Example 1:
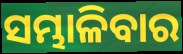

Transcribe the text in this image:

ସମ୍ଭାଳିବାର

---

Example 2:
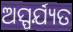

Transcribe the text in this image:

ଅସ୍ପର୍ଯ୍ୟତ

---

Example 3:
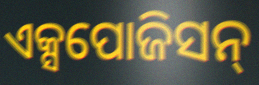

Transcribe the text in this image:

ଏକ୍ସପୋଜିସନ୍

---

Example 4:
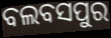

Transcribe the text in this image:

ବଲବସପୁର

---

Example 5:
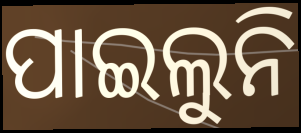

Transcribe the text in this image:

ପାଇଲୁନି